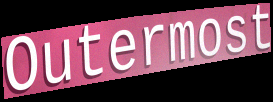
Outermost